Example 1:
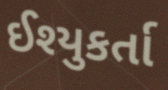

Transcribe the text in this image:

ઈશ્યુકર્તા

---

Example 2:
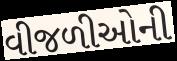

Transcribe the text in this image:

વીજળીઓની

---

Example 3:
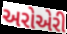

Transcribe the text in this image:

અરોએરી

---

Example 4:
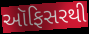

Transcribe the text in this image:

ઑફિસરથી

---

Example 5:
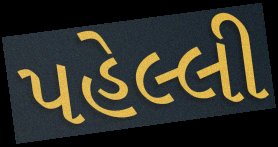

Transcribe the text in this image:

પહેલ્લી